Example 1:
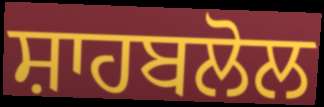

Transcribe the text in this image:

ਸ਼ਾਹਬਲੋਲ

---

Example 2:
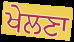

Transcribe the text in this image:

ਖੇਲਣਾ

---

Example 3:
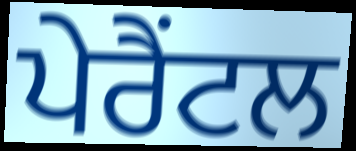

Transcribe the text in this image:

ਪੇਰੈਂਟਲ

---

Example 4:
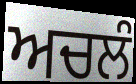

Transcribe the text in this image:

ਅਚਲੰ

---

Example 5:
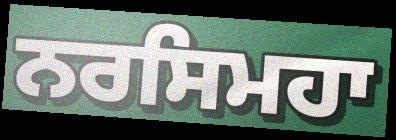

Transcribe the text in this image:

ਨਰਸਿਮਹਾ